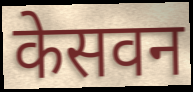
केसवन